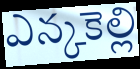
ఎన్కకెల్లి